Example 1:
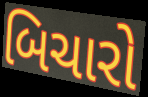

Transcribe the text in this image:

બિચારો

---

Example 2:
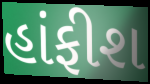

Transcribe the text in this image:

હાંફીશ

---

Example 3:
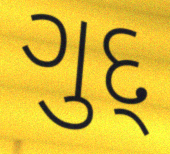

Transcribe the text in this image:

ગુદ્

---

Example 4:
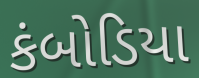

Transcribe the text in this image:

કંબોડિયા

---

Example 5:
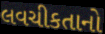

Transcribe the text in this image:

લવચીકતાનો